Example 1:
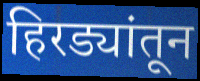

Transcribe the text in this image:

हिरड्यांतून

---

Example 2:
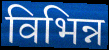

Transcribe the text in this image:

विभिन्न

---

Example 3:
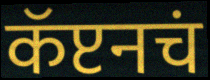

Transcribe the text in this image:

कॅप्टनचं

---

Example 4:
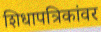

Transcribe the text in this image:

शिधापत्रिकांवर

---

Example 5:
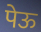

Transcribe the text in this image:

पेऊ